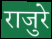
राजुरे